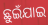
ଛୁଇଁଯାଇ